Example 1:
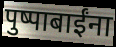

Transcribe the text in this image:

पुष्पाबाईंना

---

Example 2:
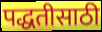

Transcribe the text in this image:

पद्धतीसाठी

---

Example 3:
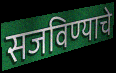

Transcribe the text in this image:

सजविण्याचे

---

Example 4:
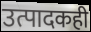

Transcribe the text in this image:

उत्पादकही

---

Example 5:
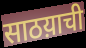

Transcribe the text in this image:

साठय़ाची